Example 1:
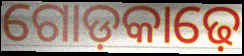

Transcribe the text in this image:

ଗୋଡ଼କାଢ଼େ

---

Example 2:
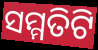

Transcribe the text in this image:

ସମ୍ମତିଟି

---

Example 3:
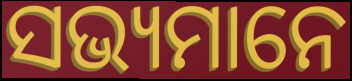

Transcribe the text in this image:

ସଭ୍ୟମାନେ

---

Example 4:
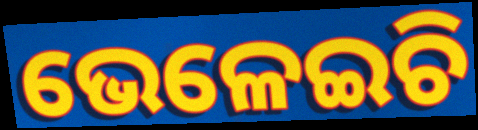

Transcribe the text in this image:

ଭେଳେଇଚି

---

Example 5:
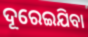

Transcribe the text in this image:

ଦୂରେଇଯିବା